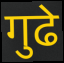
गुढे